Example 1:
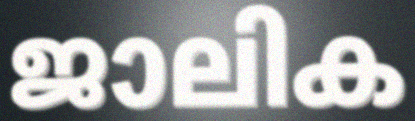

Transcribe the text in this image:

ജാലിക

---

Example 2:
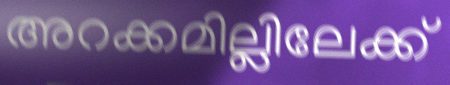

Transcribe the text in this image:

അറക്കമില്ലിലേക്ക്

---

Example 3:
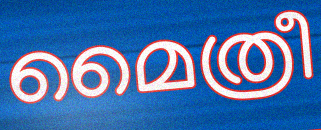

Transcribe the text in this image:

മൈത്രീ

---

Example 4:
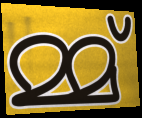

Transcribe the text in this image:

മ്മ്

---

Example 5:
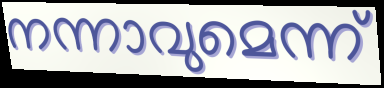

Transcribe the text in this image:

നന്നാവുമെന്ന്